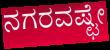
ನಗರವಷ್ಟೇ